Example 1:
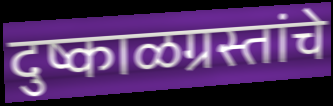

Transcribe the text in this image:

दुष्काळग्रस्तांचे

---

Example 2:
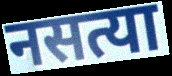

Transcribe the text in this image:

नसत्या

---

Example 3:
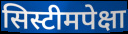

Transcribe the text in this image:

सिस्टीमपेक्षा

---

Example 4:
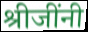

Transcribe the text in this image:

श्रीजींनी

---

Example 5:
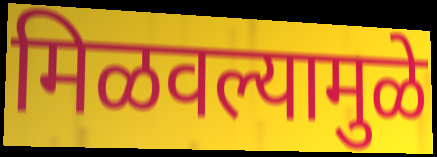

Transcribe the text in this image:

मिळवल्यामुळे